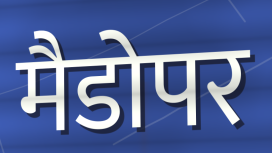
मैडोपर